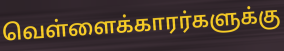
வெள்ளைக்காரர்களுக்கு